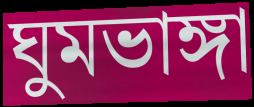
ঘুমভাঙ্গা